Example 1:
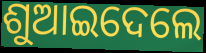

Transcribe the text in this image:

ଶୁଆଇଦେଲେ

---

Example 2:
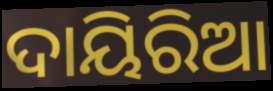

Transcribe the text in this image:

ଦାୟିରିଆ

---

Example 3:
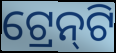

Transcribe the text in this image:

ଟ୍ରେନ୍‌ଟି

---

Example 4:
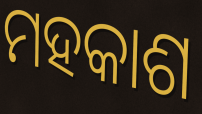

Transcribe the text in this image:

ମହକାଶ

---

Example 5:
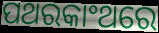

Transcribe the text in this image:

ପଥରକାଂଥରେ